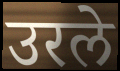
उरले